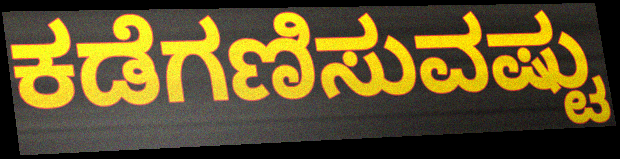
ಕಡೆಗಣಿಸುವಷ್ಟು